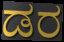
ಡರ